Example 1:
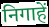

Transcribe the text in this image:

निगाहें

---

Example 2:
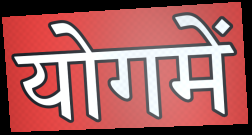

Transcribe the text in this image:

योगमें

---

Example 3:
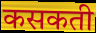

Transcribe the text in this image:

कसकती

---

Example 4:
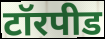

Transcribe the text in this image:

टॉरपीड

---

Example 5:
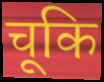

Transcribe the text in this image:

चूकि